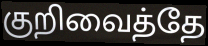
குறிவைத்தே